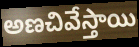
అణచివేస్తాయి